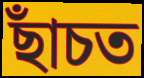
ছাঁচত